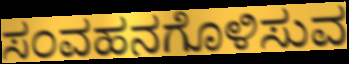
ಸಂವಹನಗೊಳಿಸುವ